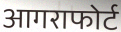
आगराफोर्ट